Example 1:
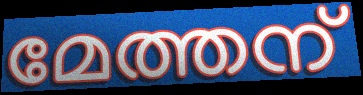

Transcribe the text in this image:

മേത്തന്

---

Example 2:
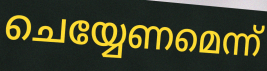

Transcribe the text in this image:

ചെയ്യേണമെന്ന്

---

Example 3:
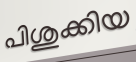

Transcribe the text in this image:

പിശുക്കിയ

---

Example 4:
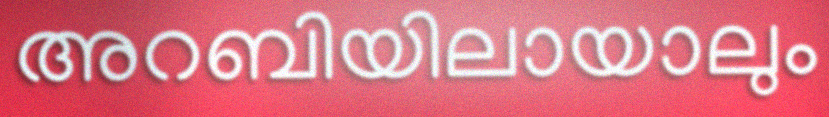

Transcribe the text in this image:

അറബിയിലായാലും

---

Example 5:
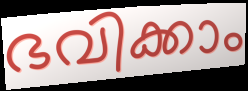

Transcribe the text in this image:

ഭവിക്കാം